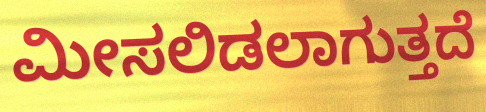
ಮೀಸಲಿಡಲಾಗುತ್ತದೆ